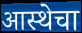
आस्थेचा